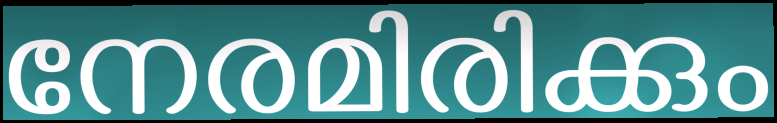
നേരമിരിക്കും